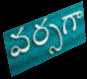
వర్సగా